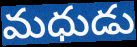
మధుడు